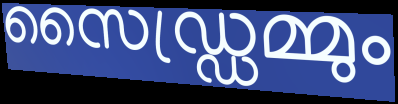
സൈഡ്ഡ്രമ്മും